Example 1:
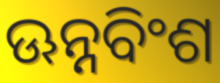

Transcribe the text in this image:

ଊନ୍ନବିଂଶ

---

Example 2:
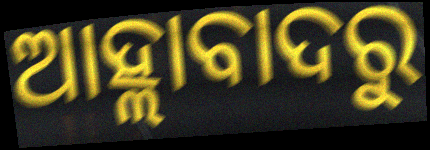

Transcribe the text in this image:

ଆହ୍ଲାବାଦରୁ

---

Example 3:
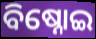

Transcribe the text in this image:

ବିଷ୍ନୋଇ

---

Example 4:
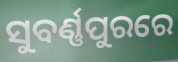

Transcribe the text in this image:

ସୁବର୍ଣ୍ଣପୁରରେ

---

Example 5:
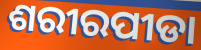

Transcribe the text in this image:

ଶରୀରପୀଡା